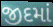
જીદમાં